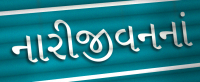
નારીજીવનનાં